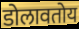
डोलावतोय